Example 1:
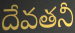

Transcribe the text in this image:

దేవతనీ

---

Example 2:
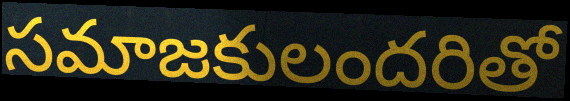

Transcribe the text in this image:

సమాజకులందరితో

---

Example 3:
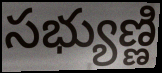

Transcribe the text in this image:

సభ్యుణ్ణి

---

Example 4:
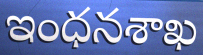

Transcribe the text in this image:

ఇంధనశాఖ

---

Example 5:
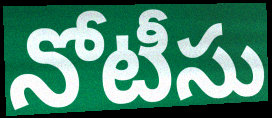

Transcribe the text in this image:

నోటీసు